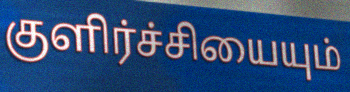
குளிர்ச்சியையும்